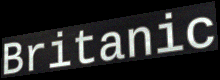
Britanic